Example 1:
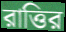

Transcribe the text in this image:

রাত্তির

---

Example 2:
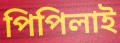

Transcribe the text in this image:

পিপিলাই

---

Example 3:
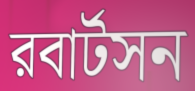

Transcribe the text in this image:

রবার্টসন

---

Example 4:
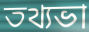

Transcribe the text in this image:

তথ্যভা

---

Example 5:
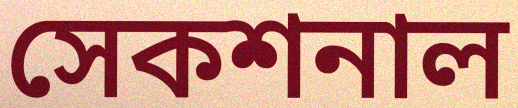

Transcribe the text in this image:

সেকশনাল